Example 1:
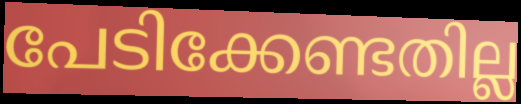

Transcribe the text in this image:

പേടിക്കേണ്ടതില്ല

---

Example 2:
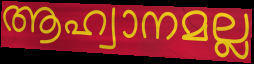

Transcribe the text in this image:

ആഹ്വാനമല്ല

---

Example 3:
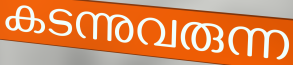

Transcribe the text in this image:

കടന്നുവരുന്ന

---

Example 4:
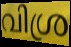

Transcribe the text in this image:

വിശ്ര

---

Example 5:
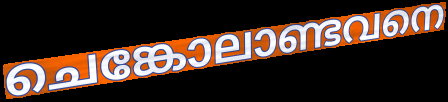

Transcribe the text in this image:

ചെങ്കോലാണ്ടവനെ